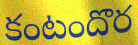
కంటందొర